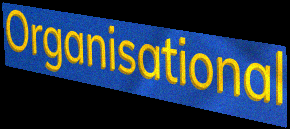
Organisational